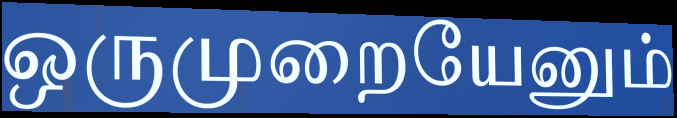
ஒருமுறையேனும்